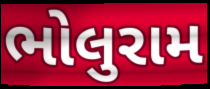
ભોલુરામ